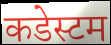
कडेस्टम